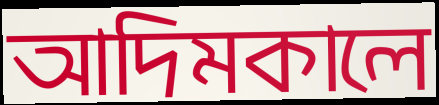
আদিমকালে